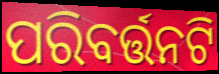
ପରିବର୍ତ୍ତନଟି